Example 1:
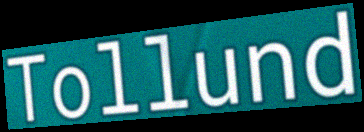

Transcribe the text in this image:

Tollund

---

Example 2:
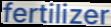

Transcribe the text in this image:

fertilizer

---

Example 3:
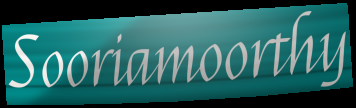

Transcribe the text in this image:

Sooriamoorthy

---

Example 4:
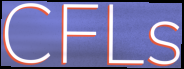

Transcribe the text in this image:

CFLs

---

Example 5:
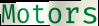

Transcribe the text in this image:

Motors